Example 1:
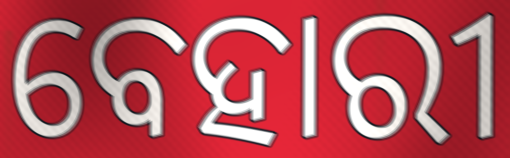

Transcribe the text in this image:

ବେହାରୀ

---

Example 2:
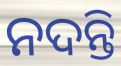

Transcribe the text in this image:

ନଦନ୍ତି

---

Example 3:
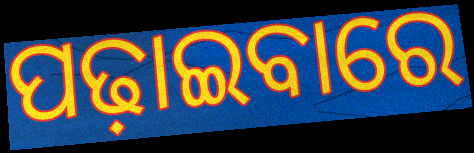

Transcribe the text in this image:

ପଢ଼ାଇବାରେ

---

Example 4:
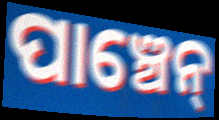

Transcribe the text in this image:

ପାଞ୍ଚେନ୍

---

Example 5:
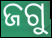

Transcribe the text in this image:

ଜଗୁ